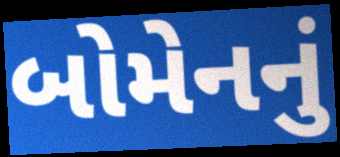
બોમેનનું